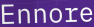
Ennore